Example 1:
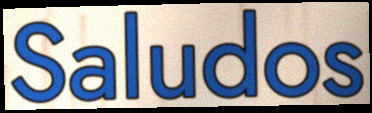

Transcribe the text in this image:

Saludos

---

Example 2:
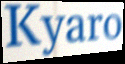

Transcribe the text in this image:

Kyaro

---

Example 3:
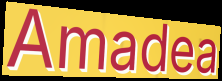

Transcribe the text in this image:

Amadea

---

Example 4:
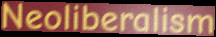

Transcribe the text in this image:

Neoliberalism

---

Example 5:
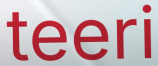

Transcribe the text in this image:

teeri